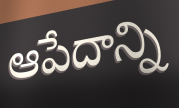
ఆపేదాన్ని